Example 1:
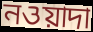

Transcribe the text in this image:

নওয়াদা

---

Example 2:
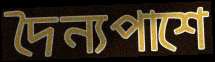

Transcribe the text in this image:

দৈন্যপাশে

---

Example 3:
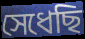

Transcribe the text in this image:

সেধেছি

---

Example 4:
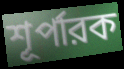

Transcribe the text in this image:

শূর্পারক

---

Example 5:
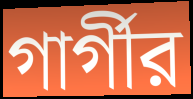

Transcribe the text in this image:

গার্গীর